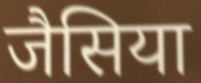
जैसिया